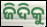
ଜିଦିକୁ